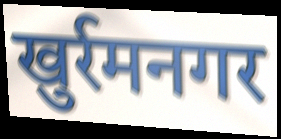
खुर्रमनगर